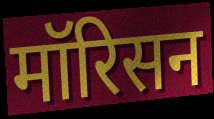
मॉरिसन